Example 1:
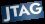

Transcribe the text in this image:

JTAG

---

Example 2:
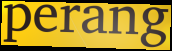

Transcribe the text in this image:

perang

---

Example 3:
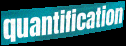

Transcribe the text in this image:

quantification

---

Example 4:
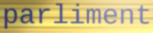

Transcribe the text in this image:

parliment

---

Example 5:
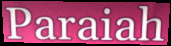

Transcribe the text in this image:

Paraiah